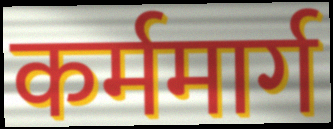
कर्ममार्ग